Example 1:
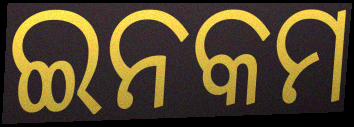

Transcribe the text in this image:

ଇନକମ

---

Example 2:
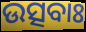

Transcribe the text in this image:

ଉତ୍ସବାଃ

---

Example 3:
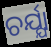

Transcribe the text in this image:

ଚର୍ଯ୍ଯା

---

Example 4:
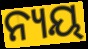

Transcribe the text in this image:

ନ୍ୟୟ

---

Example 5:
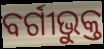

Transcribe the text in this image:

ବର୍ଗୀଭୁକ୍ତ